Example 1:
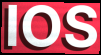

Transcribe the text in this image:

IOS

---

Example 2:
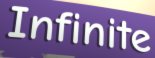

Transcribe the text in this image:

Infinite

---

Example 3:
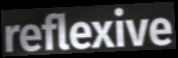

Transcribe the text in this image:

reflexive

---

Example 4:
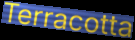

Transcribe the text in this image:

Terracotta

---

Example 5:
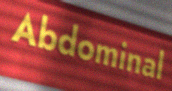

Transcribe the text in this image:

Abdominal